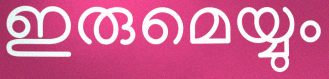
ഇരുമെയ്യും